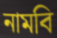
নামবি